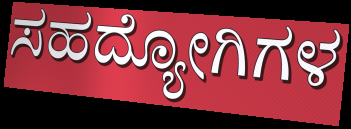
ಸಹದ್ಯೋಗಿಗಳ